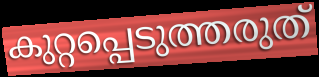
കുറ്റപ്പെടുത്തരുത്